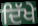
ਦਿੱਖੇ